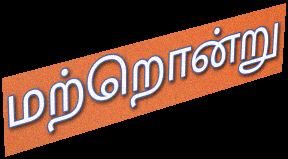
மற்றொன்று